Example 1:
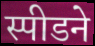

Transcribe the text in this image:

स्पीडने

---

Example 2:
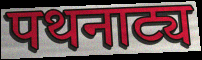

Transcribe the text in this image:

पथनाट्य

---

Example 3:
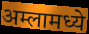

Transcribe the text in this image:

अम्लामध्ये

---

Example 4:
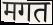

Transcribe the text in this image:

मगत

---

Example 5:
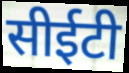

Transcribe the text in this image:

सीईटी